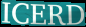
ICERD